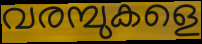
വരമ്പുകളെ